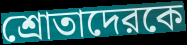
শ্রোতাদেরকে